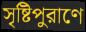
সৃষ্টিপুরাণে